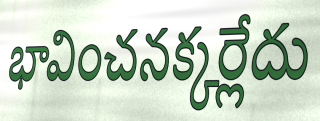
భావించనక్కర్లేదు